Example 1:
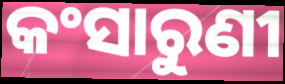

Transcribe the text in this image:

କଂସାରୁଣୀ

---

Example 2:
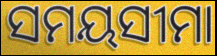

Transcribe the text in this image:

ସମୟସୀମା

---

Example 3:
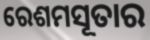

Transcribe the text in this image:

ରେଶମସୂତାର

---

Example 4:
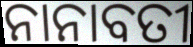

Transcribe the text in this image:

ନାନାବତୀ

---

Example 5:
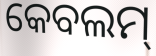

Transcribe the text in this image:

କେବଲମ୍